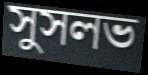
সুসলভ